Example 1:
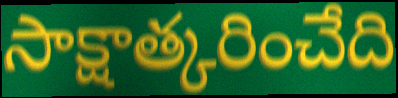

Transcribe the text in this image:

సాక్షాత్కరించేది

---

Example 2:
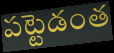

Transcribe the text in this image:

పట్టెడంత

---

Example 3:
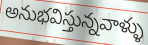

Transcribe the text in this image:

అనుభవిస్తున్నవాళ్ళు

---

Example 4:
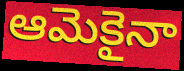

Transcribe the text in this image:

ఆమెకైనా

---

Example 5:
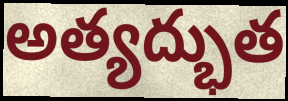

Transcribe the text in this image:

అత్యద్భుత